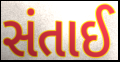
સંતાઈ